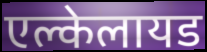
एल्केलायड